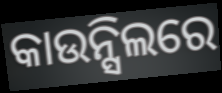
କାଉନ୍ସିଲରେ